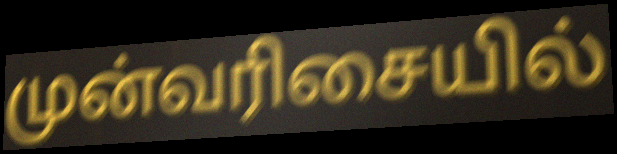
முன்வரிசையில்